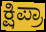
ಕ್ಷಿಪ್ರಾ